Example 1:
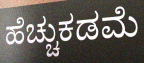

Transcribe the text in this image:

ಹೆಚ್ಚುಕಡಮೆ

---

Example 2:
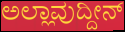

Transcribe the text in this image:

ಅಲ್ಲಾವುದ್ದೀನ್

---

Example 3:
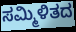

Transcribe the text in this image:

ಸಮ್ಮಿಳಿತದ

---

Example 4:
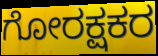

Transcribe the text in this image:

ಗೋರಕ್ಷಕರ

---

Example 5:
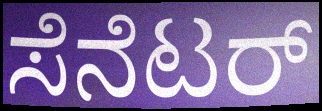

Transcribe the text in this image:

ಸೆನೆಟರ್